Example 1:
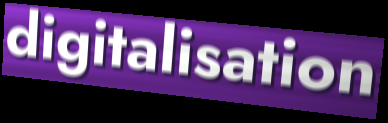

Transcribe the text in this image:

digitalisation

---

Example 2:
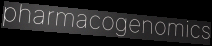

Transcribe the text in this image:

pharmacogenomics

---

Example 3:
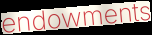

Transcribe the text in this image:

endowments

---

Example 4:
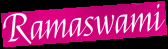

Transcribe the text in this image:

Ramaswami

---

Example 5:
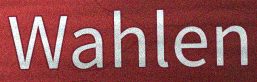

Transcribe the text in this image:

Wahlen